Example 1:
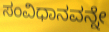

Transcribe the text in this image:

ಸಂವಿಧಾನವನ್ನೇ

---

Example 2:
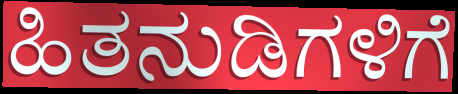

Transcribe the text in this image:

ಹಿತನುಡಿಗಳಿಗೆ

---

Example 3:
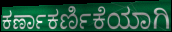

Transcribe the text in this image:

ಕರ್ಣಾಕರ್ಣಿಕೆಯಾಗಿ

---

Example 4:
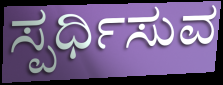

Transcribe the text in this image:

ಸ್ಪರ್ಧಿಸುವ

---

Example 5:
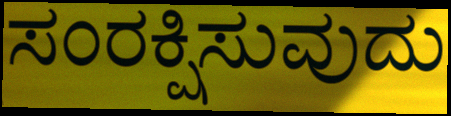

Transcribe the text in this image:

ಸಂರಕ್ಷಿಸುವುದು